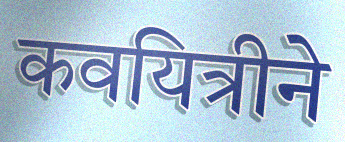
कवयित्रीने